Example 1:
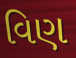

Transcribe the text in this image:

વિણ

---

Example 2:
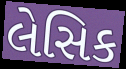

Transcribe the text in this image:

લેસિક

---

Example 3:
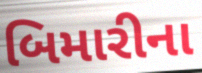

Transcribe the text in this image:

બિમારીના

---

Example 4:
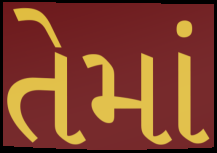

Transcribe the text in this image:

તેમાં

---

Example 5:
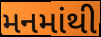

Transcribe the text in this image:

મનમાંથી